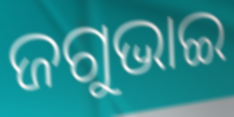
ଜଗୁଭାଇ